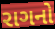
રાગનો